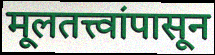
मूलतत्त्वांपासून